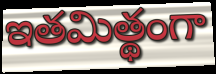
ఇతమిత్థంగా